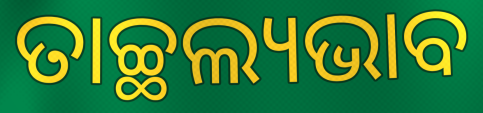
ତାଚ୍ଛଲ୍ୟଭାବ